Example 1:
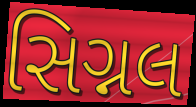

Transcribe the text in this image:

સિગ્નલ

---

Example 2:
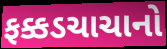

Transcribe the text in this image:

ફક્કડચાચાનો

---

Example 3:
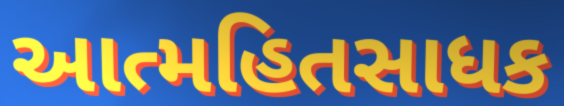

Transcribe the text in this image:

આત્મહિતસાધક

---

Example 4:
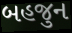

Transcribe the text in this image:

બહજુન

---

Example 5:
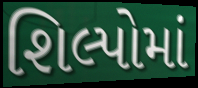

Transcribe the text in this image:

શિલ્પોમાં